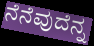
ನೆನೆವುದೆನ್ನ